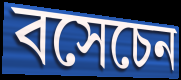
বসেচেন